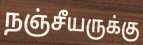
நஞ்சீயருக்கு